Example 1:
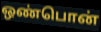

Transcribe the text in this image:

ஒண்பொன்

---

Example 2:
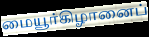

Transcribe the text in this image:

மையூர்கிழானைப்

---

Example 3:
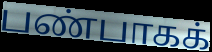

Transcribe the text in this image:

பண்பாகக்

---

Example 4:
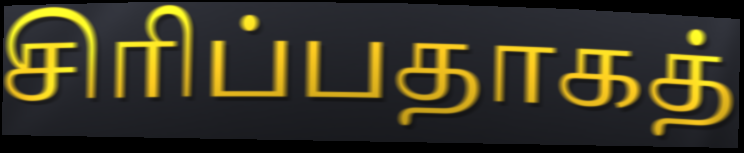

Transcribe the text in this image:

சிரிப்பதாகத்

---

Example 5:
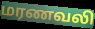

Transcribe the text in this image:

மரணவலி